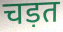
चड़त